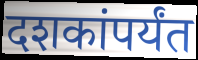
दशकांपर्यंत